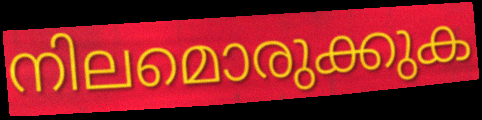
നിലമൊരുക്കുക